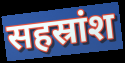
सहस्रांश